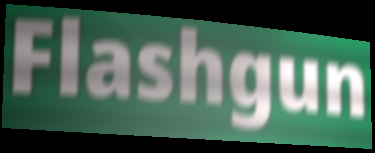
Flashgun